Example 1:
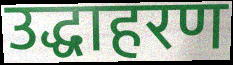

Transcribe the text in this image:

उद्धाहरण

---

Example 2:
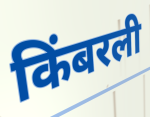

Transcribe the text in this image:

किंबरली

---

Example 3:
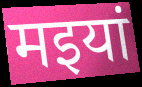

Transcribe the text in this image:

मइयां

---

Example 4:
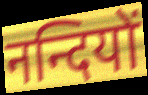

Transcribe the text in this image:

नन्दियों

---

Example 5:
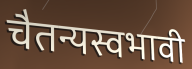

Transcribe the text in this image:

चैतन्यस्वभावी